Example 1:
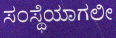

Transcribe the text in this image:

ಸಂಸ್ಥೆಯಾಗಲೀ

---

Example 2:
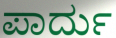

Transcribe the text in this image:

ಪಾರ್ದು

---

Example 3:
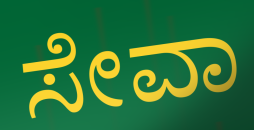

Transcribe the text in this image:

ಸೇವಾ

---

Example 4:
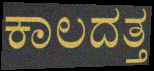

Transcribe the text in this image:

ಕಾಲದತ್ತ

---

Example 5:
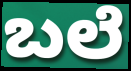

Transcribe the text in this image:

ಬಲೆ